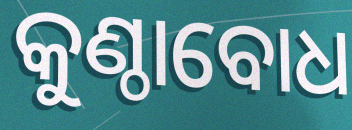
କୁଣ୍ଠାବୋଧ